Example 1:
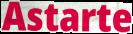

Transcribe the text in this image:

Astarte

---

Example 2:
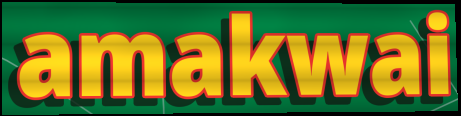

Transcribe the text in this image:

amakwai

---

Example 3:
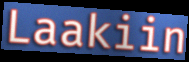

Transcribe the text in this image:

Laakiin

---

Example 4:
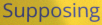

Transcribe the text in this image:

Supposing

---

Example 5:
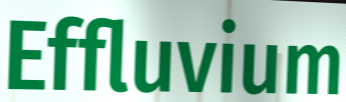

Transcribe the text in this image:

Effluvium